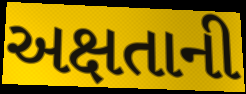
અક્ષતાની